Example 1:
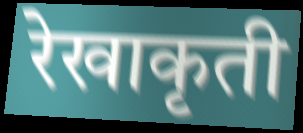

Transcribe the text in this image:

रेखाकृती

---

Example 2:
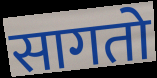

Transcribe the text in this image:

सागतो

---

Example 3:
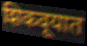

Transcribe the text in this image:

शिकवूयात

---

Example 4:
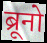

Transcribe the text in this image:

ब्रूनो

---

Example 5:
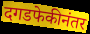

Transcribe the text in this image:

दगडफेकीनंतर